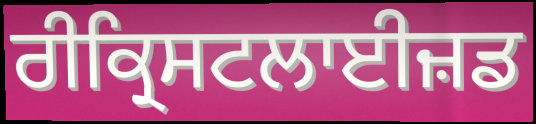
ਰੀਕ੍ਰਿਸਟਲਾਈਜ਼ਡ